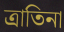
ত্রাতিনা